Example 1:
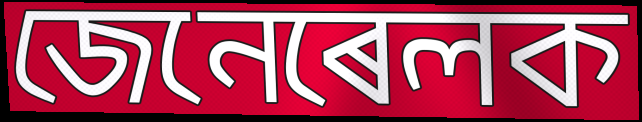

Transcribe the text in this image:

জেনেৰেলক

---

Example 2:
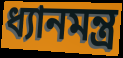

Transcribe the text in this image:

ধ্যানমন্ত্ৰ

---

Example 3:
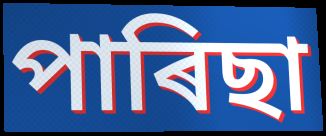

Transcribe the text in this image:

পাৰিছা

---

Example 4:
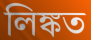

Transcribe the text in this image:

লিঙ্কত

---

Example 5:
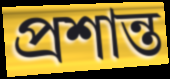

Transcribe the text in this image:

প্ৰশান্ত